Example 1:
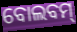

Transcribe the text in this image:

ବୋଲବମ୍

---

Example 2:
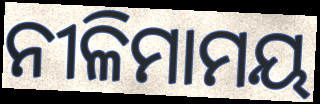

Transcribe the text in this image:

ନୀଳିମାମୟ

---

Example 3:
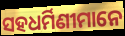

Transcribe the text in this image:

ସହଧର୍ମିଣୀମାନେ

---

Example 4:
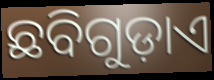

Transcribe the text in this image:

ଛବିଗୁଡ଼ାଏ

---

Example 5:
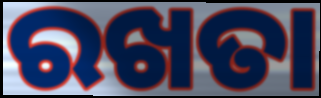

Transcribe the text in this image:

ରଖତା